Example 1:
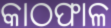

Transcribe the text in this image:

କାଠଫାଳ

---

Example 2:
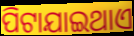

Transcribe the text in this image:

ପିଟାଯାଇଥାଏ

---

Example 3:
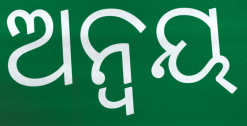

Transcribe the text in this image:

ଅନ୍ୱୟ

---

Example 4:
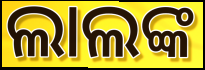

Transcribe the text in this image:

ଲାଲଙ୍କ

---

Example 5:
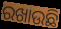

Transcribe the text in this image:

ରଖାଉଛି